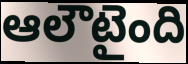
ఆలౌటైంది